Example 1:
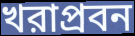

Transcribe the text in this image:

খরাপ্রবন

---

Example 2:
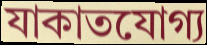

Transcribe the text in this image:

যাকাতযোগ্য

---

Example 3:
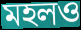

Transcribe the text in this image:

মহলও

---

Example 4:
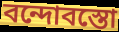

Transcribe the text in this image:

বন্দোবস্তো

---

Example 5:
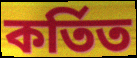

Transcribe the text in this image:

কর্তিত